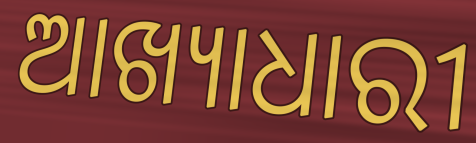
ଆଖ୍ୟାଧାରୀ